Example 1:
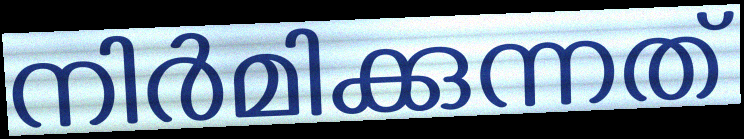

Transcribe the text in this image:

നിർമിക്കുന്നത്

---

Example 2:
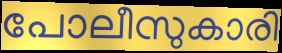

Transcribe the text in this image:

പോലീസുകാരി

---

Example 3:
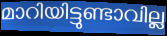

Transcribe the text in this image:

മാറിയിട്ടുണ്ടാവില്ല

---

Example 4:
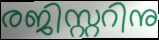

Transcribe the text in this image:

രജിസ്റ്ററിനു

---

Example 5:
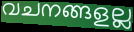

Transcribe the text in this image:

വചനങ്ങളല്ല